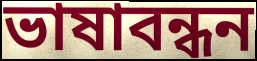
ভাষাবন্ধন